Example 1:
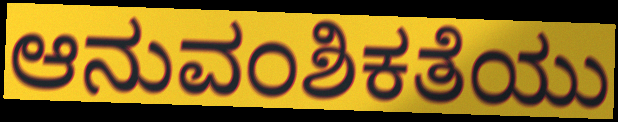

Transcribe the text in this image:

ಆನುವಂಶಿಕತೆಯು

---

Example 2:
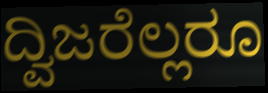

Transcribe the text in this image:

ದ್ವಿಜರೆಲ್ಲರೂ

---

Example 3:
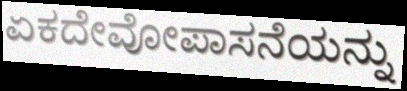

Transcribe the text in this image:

ಏಕದೇವೋಪಾಸನೆಯನ್ನು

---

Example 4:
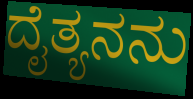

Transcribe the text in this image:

ದೈತ್ಯನನು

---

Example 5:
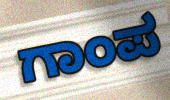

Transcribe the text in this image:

ಗಾಂಪ